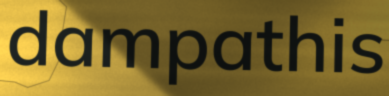
dampathis